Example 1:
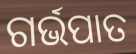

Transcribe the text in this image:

ଗର୍ଭପାତ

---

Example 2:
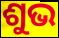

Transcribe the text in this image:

ଶୁଭ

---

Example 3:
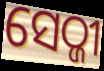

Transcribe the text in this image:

ସେଠ୍ଜୀ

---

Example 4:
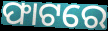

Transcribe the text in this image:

ଫାଟରେ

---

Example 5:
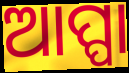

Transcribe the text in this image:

ଆପ୍ପା